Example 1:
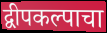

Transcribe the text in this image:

द्वीपकल्पाचा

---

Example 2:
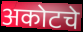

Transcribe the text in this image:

अकोटचे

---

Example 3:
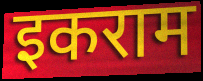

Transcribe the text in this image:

इकराम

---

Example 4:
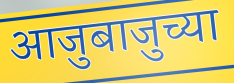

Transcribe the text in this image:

आजुबाजुच्या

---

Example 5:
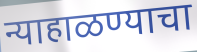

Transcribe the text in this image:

न्याहाळण्याचा